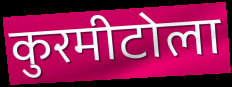
कुरमीटोला